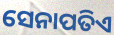
ସେନାପତିଏ